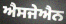
ਐਸਜੇਐਨ